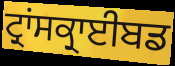
ਟ੍ਰਾਂਸਕ੍ਰਾਈਬਡ